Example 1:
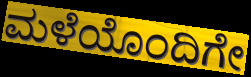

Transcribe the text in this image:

ಮಳೆಯೊಂದಿಗೇ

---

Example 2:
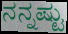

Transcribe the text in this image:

ನನ್ನಷ್ಟು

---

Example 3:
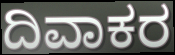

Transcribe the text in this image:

ದಿವಾಕರ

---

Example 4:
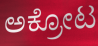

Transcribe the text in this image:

ಅಕ್ರೋಟ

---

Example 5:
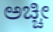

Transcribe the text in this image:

ಅಚ್ಚೀ